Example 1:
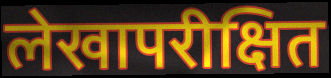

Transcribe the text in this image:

लेखापरीक्षित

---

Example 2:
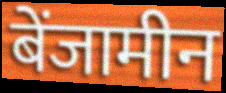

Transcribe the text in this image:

बेंजामीन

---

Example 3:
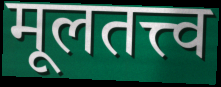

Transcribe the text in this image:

मूलतत्त्व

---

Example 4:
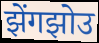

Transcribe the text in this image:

झेंगझोउ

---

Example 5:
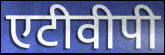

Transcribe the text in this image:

एटीवीपी